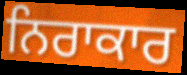
ਨਿਰਾਕਾਰ